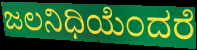
ಜಲನಿಧಿಯೆಂದರೆ